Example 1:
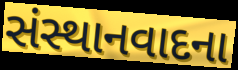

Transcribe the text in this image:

સંસ્થાનવાદના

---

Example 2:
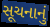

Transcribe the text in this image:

સૂચનાનું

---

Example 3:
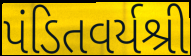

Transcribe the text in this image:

પંડિતવર્યશ્રી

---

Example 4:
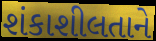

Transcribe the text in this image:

શંકાશીલતાને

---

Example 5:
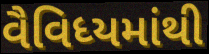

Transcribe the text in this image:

વૈવિધ્યમાંથી